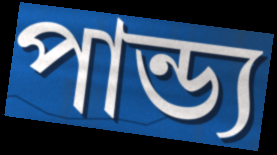
পান্ড্য